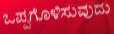
ಒಪ್ಪಗೊಳಿಸುವುದು